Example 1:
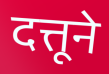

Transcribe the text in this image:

दत्तूने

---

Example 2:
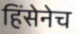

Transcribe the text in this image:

हिंसेनेच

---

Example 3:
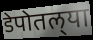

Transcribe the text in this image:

डेपोतल्या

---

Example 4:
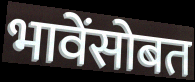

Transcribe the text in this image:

भावेंसोबत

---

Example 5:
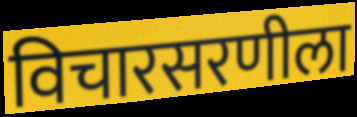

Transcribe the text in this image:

विचारसरणीला